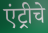
एंट्रीचे